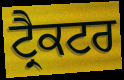
ਟ੍ਰੈਕਟਰ